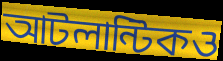
আটলান্টিকও